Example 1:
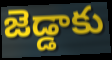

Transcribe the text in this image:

జెడ్డాకు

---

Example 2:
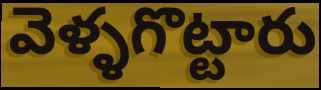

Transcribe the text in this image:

వెళ్ళగొట్టారు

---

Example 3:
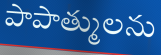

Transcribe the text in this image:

పాపాత్ములను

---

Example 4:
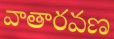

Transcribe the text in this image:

వాతారవణ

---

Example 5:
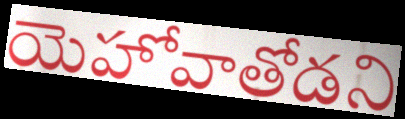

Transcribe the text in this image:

యెహోవాతోడని